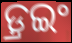
ଡ଼୍ରଇଂ